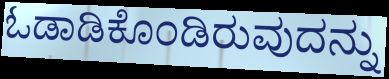
ಓಡಾಡಿಕೊಂಡಿರುವುದನ್ನು